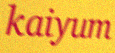
kaiyum